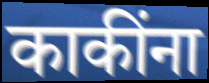
काकींना